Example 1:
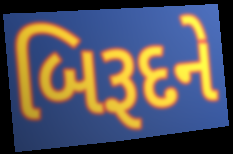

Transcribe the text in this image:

બિરૂદને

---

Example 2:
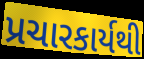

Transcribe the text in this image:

પ્રચારકાર્યથી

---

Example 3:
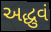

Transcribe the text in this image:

અદ્ધુવં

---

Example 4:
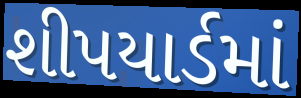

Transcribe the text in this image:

શીપયાર્ડમાં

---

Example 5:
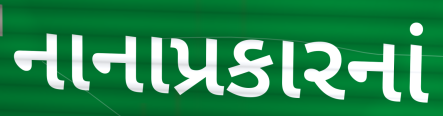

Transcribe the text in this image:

નાનાપ્રકારનાં